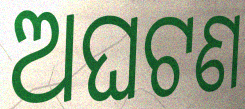
ଅଘଟଣ